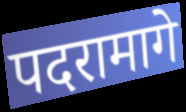
पदरामागे